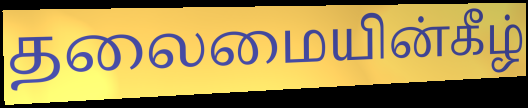
தலைமையின்கீழ்